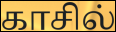
காசில்